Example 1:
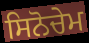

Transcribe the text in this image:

ਸਿਨੋਚੇਮ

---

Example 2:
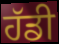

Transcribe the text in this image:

ਹੱਡੀ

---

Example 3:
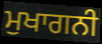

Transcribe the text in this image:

ਮੁਖਾਗਨੀ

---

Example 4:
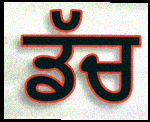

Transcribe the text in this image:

ਡੱਚ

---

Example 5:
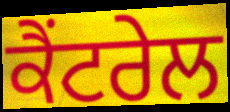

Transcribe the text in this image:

ਕੈਂਟਰੇਲ